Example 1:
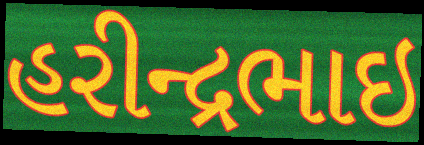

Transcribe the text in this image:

હરીન્દ્રભાઇ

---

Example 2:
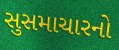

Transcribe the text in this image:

સુસમાચારનો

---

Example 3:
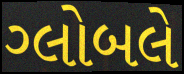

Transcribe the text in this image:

ગ્લોબલે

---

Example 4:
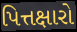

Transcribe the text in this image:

પિત્તક્ષારો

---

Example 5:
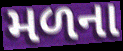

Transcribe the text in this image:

મળના